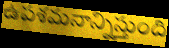
ఉపశమనాన్నిస్తుంది